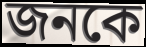
জনকে